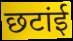
छटांई